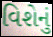
વિશેનું